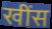
खींस